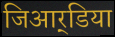
जिआर्डिया